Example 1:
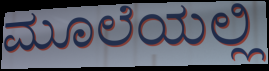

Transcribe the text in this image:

ಮೂಲೆಯಲ್ಲಿ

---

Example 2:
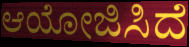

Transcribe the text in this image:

ಆಯೋಜಿಸಿದೆ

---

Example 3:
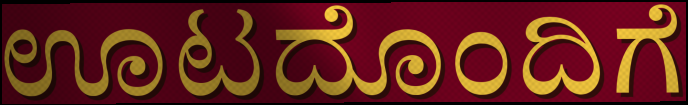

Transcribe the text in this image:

ಊಟದೊಂದಿಗೆ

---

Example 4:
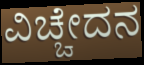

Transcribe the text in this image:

ವಿಚ್ಚೇದನ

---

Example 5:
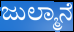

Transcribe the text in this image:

ಜುಲ್ಮಾನೆ